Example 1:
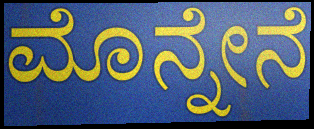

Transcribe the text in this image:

ಮೊನ್ನೇನೆ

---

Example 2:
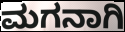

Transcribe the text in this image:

ಮಗನಾಗಿ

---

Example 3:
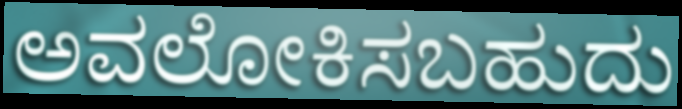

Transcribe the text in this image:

ಅವಲೋಕಿಸಬಹುದು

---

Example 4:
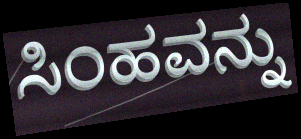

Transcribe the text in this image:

ಸಿಂಹವನ್ನು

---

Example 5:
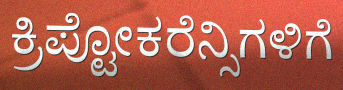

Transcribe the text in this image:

ಕ್ರಿಪ್ಟೋಕರೆನ್ಸಿಗಳಿಗೆ